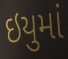
ઇયુમાં